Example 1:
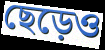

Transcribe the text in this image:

ছেড়েও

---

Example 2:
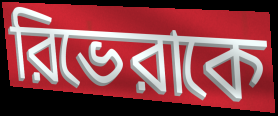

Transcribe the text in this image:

রিভেরাকে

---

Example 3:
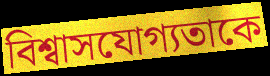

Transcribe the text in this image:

বিশ্বাসযোগ্যতাকে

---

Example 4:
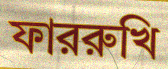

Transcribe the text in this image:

ফাররুখি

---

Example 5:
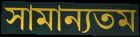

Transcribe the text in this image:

সামান্যতম